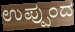
ಉಪ್ಪುಂದ